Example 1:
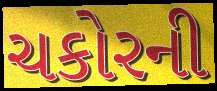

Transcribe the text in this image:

ચકોરની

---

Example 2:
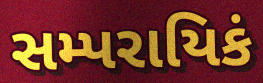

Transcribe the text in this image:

સમ્પરાયિકં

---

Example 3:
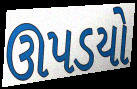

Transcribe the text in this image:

ઊપડયો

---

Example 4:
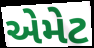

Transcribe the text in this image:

એમેટ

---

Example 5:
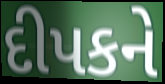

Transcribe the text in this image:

દીપકને